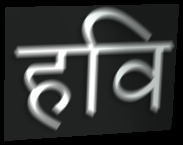
हवि